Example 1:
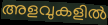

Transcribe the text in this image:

അളവുകളിൽ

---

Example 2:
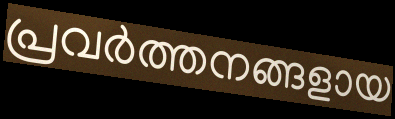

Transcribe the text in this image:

പ്രവർത്തനങ്ങളായ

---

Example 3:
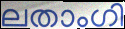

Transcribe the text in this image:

ലതാംഗി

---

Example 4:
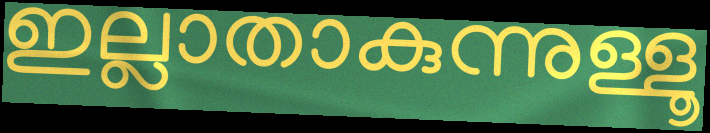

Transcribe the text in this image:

ഇല്ലാതാകുന്നുള്ളൂ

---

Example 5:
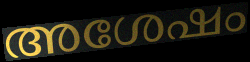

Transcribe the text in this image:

അശേഷം